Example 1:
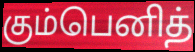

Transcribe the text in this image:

கும்பெனித்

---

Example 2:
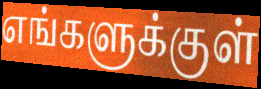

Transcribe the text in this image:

எங்களுக்குள்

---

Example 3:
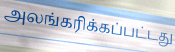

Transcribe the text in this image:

அலங்கரிக்கப்பட்டது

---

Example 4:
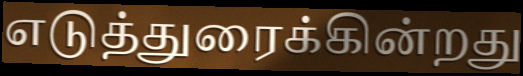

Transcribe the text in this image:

எடுத்துரைக்கின்றது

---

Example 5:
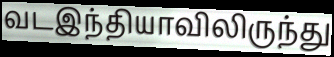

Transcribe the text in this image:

வடஇந்தியாவிலிருந்து